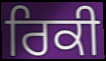
ਰਿਕੀ